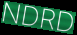
NDRD